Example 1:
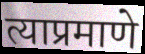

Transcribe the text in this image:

त्याप्रमाणे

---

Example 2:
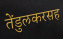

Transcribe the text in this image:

तेंडुलकरसह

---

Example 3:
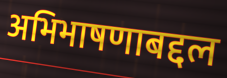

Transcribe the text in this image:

अभिभाषणाबद्दल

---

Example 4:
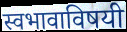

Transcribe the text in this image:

स्वभावाविषयी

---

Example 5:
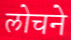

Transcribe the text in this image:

लोचने